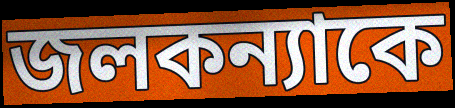
জলকন্যাকে